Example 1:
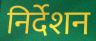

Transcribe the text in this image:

निर्देशन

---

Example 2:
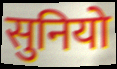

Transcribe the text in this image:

सुनियो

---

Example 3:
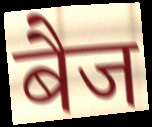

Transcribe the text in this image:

बैज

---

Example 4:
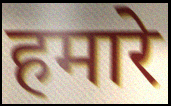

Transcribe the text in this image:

हमारे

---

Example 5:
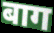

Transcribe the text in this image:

बाग